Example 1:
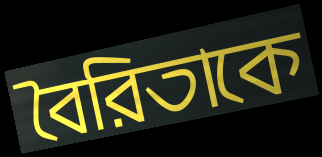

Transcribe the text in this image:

বৈরিতাকে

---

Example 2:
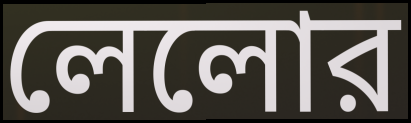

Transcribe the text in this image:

লেলোর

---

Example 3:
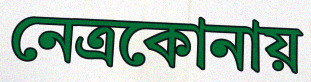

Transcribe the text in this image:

নেত্রকোনায়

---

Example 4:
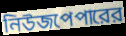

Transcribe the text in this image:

নিউজপেপারের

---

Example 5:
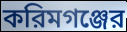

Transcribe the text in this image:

করিমগঞ্জের